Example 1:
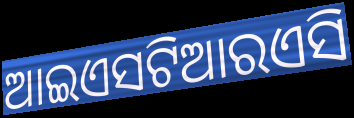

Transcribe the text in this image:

ଆଇଏସଟିଆରଏସି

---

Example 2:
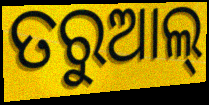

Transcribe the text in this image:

ତରୁଆଲ୍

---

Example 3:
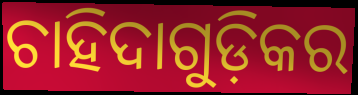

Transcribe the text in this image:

ଚାହିଦାଗୁଡ଼ିକର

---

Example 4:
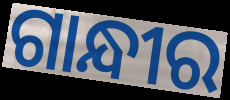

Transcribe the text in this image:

ଗାନ୍ଧୀର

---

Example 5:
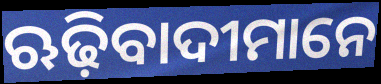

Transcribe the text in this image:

ଋଢ଼ିବାଦୀମାନେ